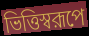
ভিত্তিস্বরূপে